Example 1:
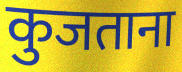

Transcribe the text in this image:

कुजताना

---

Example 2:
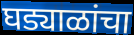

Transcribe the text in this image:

घड्याळांचा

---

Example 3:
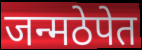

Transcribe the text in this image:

जन्मठेपेत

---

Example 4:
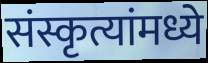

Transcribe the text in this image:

संस्कृत्यांमध्ये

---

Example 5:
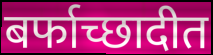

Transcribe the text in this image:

बर्फाच्छादीत